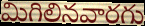
మిగిలినవారగు